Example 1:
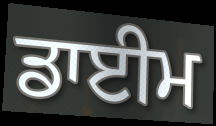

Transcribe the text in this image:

ਡਾਈਮ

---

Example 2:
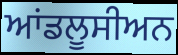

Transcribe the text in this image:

ਆਂਡਲੂਸੀਅਨ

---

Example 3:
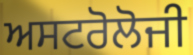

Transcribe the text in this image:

ਅਸਟਰੋਲੋਜੀ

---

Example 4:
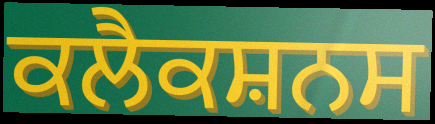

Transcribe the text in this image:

ਕਲੈਕਸ਼ਨਸ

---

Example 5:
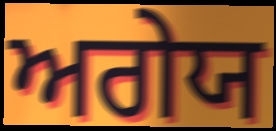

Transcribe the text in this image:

ਅਗੇਯ